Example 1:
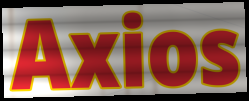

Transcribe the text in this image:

Axios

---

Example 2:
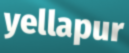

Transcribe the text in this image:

yellapur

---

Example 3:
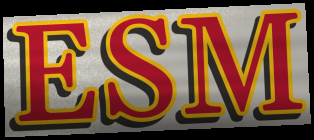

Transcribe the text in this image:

ESM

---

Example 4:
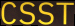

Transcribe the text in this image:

CSST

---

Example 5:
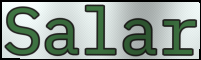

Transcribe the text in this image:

Salar